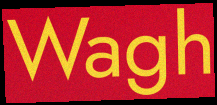
Wagh